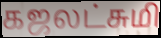
கஜலட்சுமி